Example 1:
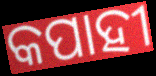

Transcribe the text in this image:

କପାହୀ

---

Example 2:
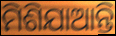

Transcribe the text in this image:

ମିଶିଯାଆନ୍ତି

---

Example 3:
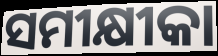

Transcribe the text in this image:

ସମୀକ୍ଷୀକା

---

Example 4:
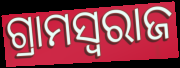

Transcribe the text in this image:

ଗ୍ରାମସ୍ବରାଜ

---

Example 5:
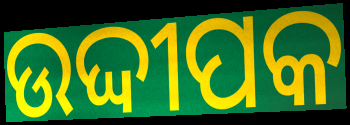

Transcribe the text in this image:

ଉଦ୍ଦୀପକ